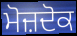
ਮੋਜ਼ਦੋਕ